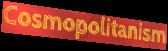
Cosmopolitanism